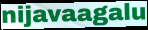
nijavaagalu